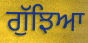
ਗੁੱਝਿਆ